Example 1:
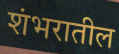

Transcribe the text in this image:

शंभरातील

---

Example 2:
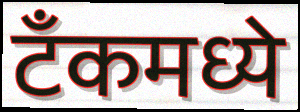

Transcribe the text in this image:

टॅंकमध्ये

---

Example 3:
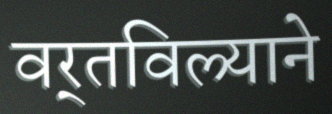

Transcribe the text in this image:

वर्तविल्याने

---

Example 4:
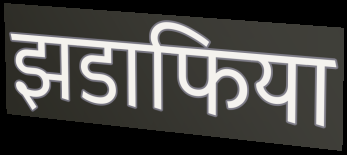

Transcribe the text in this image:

झडाफिया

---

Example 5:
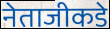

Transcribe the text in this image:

नेताजीकडे